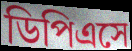
ডিপিএসে